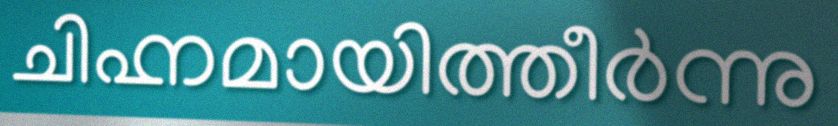
ചിഹ്നമായിത്തീർന്നു